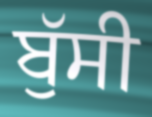
ਬੁੱਸੀ